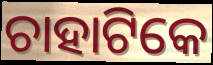
ଚାହାଟିକେ